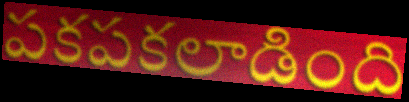
పకపకలాడింది